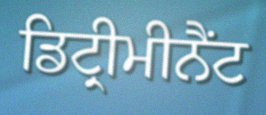
ਡਿਟ੍ਰੀਮੀਨੈਂਟ